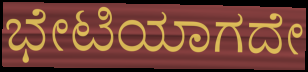
ಭೇಟಿಯಾಗದೇ